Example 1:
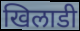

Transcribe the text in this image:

खिलाडी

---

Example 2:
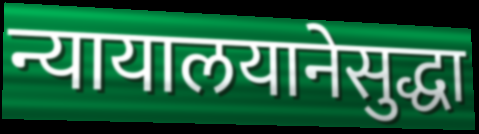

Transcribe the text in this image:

न्यायालयानेसुद्धा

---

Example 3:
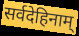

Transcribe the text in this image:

सर्वदेहिनाम्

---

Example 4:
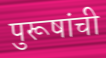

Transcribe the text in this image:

पुरूषांची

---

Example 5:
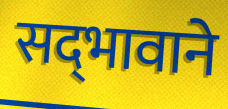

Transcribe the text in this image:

सद्‌भावाने